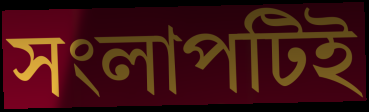
সংলাপটিই